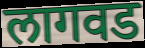
लागवड